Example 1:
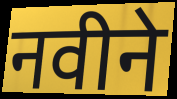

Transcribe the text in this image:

नवीने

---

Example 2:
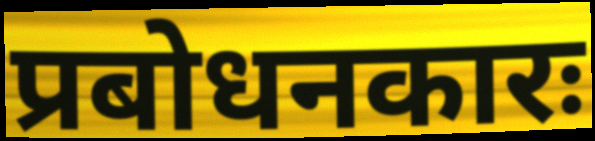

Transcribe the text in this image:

प्रबोधनकारः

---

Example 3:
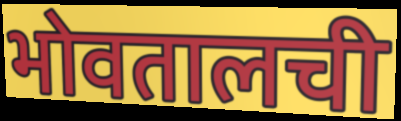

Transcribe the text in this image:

भोवतालची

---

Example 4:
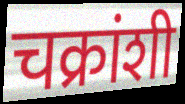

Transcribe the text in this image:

चक्रांशी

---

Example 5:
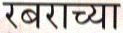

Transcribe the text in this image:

रबराच्या